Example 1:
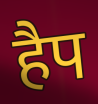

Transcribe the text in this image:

हैप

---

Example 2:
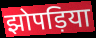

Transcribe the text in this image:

झोपड़िया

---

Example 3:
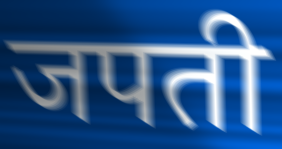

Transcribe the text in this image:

जपती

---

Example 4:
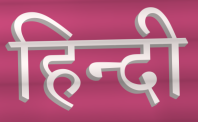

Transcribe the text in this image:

हिन्दी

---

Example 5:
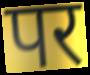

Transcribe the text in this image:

पर